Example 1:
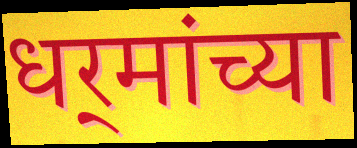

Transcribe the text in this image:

धर्मांच्या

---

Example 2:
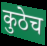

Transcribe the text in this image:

कुठेच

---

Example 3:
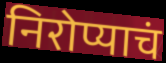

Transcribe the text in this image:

निरोप्याचं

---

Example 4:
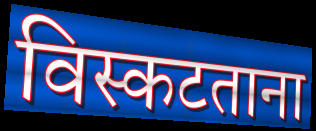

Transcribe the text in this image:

विस्कटताना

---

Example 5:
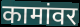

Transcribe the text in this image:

कामांवर